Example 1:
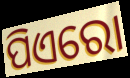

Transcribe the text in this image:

ପିଏରୋ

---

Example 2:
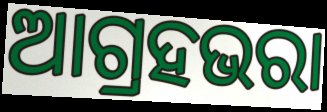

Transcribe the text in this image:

ଆଗ୍ରହଭରା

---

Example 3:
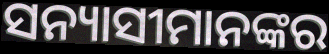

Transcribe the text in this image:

ସନ୍ୟାସୀମାନଙ୍କର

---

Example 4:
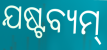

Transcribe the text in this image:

ଯଷ୍ଟବ୍ୟମ୍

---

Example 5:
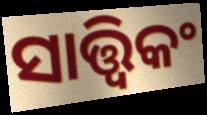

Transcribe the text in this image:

ସାତ୍ତ୍ୱିକଂ